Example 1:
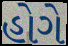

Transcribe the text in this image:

હોગે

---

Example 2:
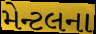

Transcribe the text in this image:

મેન્ટલના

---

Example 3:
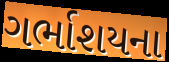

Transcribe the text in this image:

ગર્ભાશયના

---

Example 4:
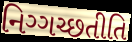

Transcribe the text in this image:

નિગ્ગચ્છતીતિ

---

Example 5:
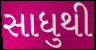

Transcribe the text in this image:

સાધુથી